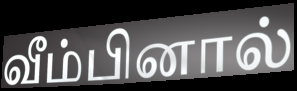
வீம்பினால்